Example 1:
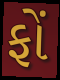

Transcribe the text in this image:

ફોં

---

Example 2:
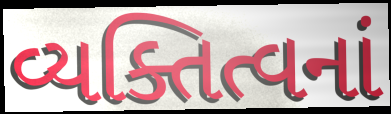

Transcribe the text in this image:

વ્યક્તિત્વનાં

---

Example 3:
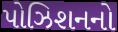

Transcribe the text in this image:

પોઝિશનનો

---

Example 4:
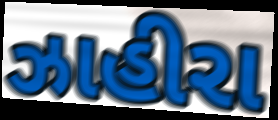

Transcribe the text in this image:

ઝાહીરા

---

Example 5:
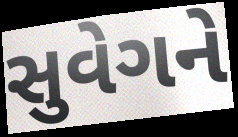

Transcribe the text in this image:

સુવેગને